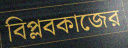
বিপ্লবকাজের